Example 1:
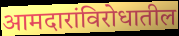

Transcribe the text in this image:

आमदारांविरोधातील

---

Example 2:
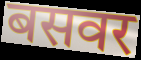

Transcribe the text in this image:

बसवर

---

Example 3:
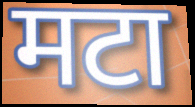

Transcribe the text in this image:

मटा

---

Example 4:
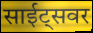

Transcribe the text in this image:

साईट्सवर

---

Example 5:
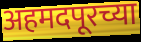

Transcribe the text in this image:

अहमदपूरच्या